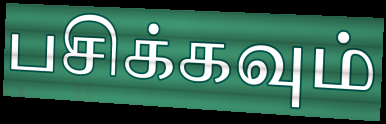
பசிக்கவும்